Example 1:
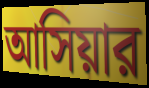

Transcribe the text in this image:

আসিয়ার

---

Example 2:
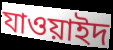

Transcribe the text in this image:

যাওয়াইদ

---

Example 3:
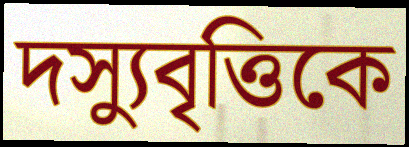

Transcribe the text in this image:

দস্যুবৃত্তিকে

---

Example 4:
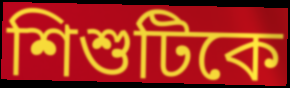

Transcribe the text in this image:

শিশুটিকে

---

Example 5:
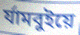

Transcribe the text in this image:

র্যামবুইয়ে